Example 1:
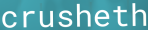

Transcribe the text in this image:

crusheth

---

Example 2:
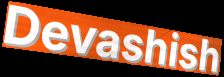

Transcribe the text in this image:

Devashish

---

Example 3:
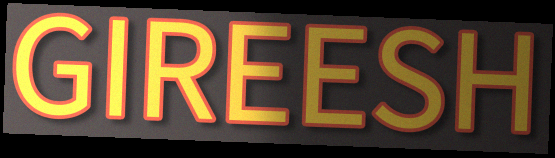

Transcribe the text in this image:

GIREESH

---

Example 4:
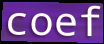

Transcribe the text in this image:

coef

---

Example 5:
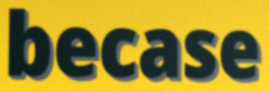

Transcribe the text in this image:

becase